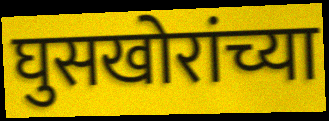
घुसखोरांच्या